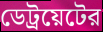
ডেট্রয়েটের